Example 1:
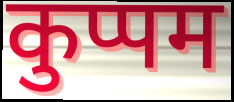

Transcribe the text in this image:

कुप्पम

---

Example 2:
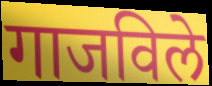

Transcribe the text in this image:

गाजविले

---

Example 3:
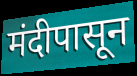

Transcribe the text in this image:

मंदीपासून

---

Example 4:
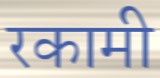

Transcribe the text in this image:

रकामी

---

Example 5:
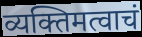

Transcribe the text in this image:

व्यक्तिमत्वाचं